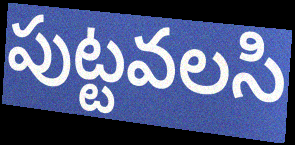
పుట్టవలసి